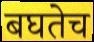
बघतेच